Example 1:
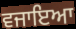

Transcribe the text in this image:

ਵਜਾਇਆ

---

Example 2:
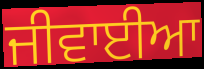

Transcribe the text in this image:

ਜੀਵਾਈਆ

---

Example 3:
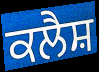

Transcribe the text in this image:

ਕਲੈਸ਼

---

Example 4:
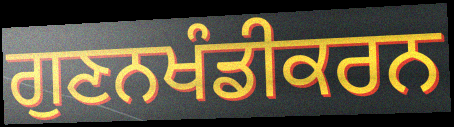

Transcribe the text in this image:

ਗੁਣਨਖੰਡੀਕਰਨ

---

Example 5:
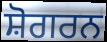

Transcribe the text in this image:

ਸ਼ੋਗਰਨ